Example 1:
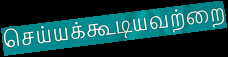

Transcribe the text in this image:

செய்யக்கூடியவற்றை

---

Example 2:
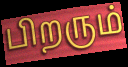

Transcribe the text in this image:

பிறரும்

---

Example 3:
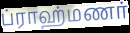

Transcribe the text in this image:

ப்ராஹ்மணர்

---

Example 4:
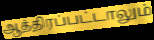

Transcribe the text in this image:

ஆத்திரப்பட்டாலும்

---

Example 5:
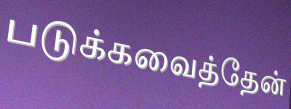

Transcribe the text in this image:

படுக்கவைத்தேன்